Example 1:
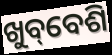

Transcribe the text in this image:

ଖୁବ୍‌ବେଶି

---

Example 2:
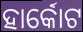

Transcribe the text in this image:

ହାର୍କୋଟ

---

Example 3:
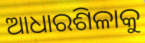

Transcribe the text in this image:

ଆଧାରଶିଳାକୁ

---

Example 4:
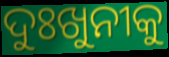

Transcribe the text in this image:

ଦୁଃଖୁନୀକୁ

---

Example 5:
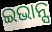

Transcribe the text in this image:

ଇଭାନ୍ସ